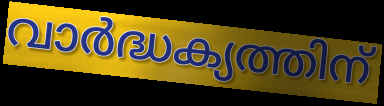
വാർദ്ധക്യത്തിന്